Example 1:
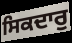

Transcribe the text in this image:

ਸਿਕਦਾਰੁ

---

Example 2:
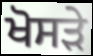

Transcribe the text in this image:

ਖੋਸੜੇ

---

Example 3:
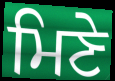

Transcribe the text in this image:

ਮਿਣੇ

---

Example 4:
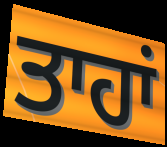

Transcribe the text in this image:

ਤਾਹਾਂ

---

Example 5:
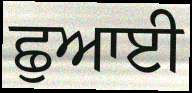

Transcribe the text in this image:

ਛੁਆਈ